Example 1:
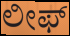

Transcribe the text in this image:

ಲೀಫ್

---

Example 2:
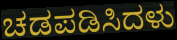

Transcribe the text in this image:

ಚಡಪಡಿಸಿದಳು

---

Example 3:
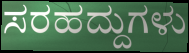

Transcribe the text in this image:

ಸರಹದ್ದುಗಳು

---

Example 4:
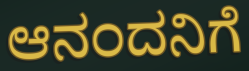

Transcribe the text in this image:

ಆನಂದನಿಗೆ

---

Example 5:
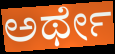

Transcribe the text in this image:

ಅರ್ಥೇ